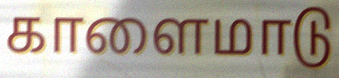
காளைமாடு